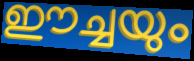
ഈച്ചയും